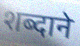
शब्दाने